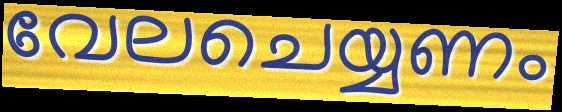
വേലചെയ്യണം